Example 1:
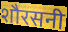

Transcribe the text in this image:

शौरसनी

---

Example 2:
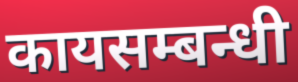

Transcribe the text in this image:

कायसम्बन्धी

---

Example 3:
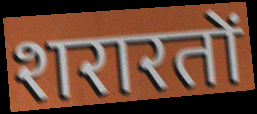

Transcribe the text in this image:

शरारतों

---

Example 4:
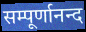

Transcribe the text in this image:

सम्पूर्णानन्द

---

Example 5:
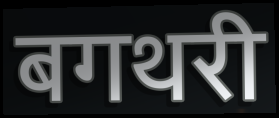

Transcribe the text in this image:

बगथरी